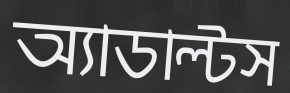
অ্যাডাল্টস